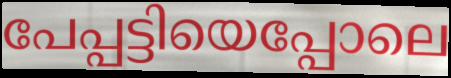
പേപ്പട്ടിയെപ്പോലെ